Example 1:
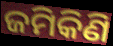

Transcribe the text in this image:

ଜମିକିଣି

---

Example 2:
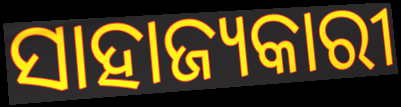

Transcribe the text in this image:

ସାହାଜ୍ଯକାରୀ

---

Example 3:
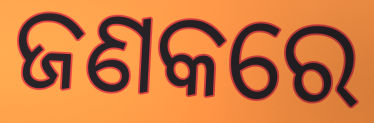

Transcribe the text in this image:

ଜଣକରେ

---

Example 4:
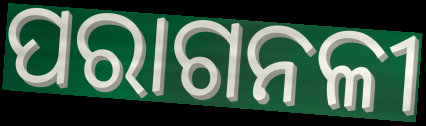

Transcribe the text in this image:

ପରାଗନଳୀ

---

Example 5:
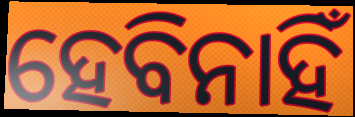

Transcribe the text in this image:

ହେବିନାହିଁ